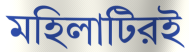
মহিলাটিরই